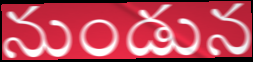
నుండున